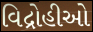
વિદ્રોહીઓ